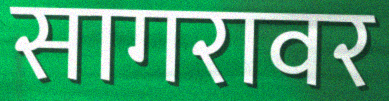
सागरावर